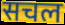
सचल